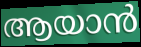
ആയാൻ